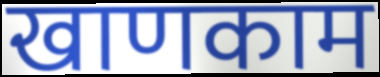
खाणकाम